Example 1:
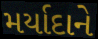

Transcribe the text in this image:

મર્યાદાને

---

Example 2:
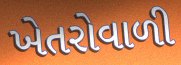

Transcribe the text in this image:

ખેતરોવાળી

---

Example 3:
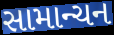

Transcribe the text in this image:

સામાન્ચન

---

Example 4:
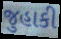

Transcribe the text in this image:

જુહાકી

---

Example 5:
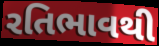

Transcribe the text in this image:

રતિભાવથી